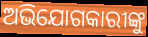
ଅଭିଯୋଗକାରୀଙ୍କୁ